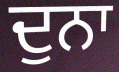
ਦੁਨਾ